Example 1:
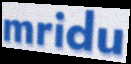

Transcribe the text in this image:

mridu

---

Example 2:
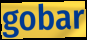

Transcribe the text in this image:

gobar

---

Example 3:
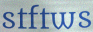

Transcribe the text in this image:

stftws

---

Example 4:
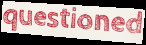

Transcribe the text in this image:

questioned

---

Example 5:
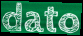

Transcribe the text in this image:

dato